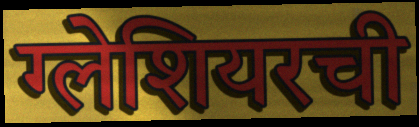
ग्लेशियरची